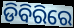
ଡିବିରିରେ